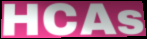
HCAs